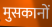
मुसकानों